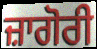
ਜ਼ਾਗੋਰੀ